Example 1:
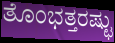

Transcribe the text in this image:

ತೊಂಭತ್ತರಷ್ಟು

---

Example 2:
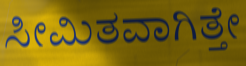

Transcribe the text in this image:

ಸೀಮಿತವಾಗಿತ್ತೇ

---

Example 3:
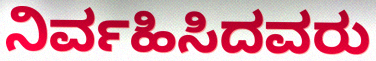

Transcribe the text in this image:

ನಿರ್ವಹಿಸಿದವರು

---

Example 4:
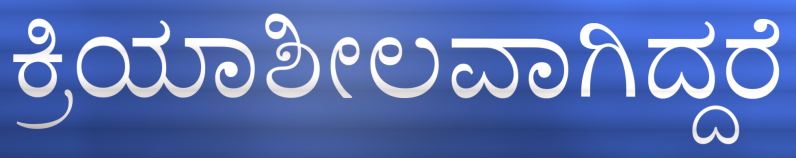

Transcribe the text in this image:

ಕ್ರಿಯಾಶೀಲವಾಗಿದ್ದರೆ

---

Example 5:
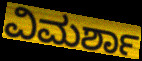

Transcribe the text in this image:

ವಿಮರ್ಶಾ